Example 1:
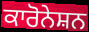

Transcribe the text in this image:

ਕਾਰੋਨੇਸ਼ਨ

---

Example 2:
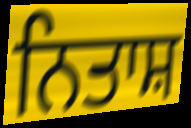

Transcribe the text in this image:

ਨਿਤਾਸ਼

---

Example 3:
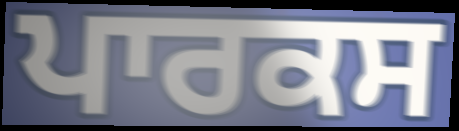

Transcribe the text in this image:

ਪਾਰਕਸ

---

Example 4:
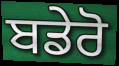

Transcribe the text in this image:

ਬਡੇਰੋ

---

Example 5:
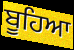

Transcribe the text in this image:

ਬੂਹਿਆ